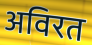
अविरत